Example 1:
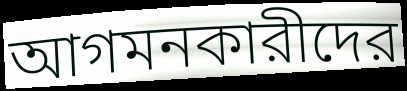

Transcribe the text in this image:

আগমনকারীদের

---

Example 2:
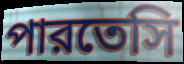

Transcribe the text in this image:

পারতেসি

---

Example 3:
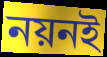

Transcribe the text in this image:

নয়নই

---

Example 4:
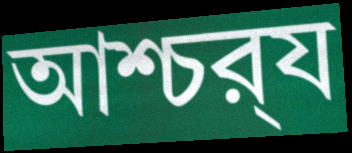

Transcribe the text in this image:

আশ্চর্‍য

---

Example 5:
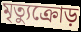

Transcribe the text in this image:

মৃত্যুক্রোড়